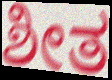
ಶೀತ